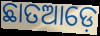
ଛାତଆଡ଼େ